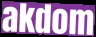
akdom